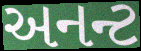
અનન્ટ